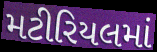
મટીરિયલમાં